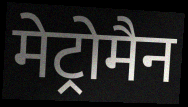
मेट्रोमैन